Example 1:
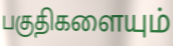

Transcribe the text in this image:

பகுதிகளையும்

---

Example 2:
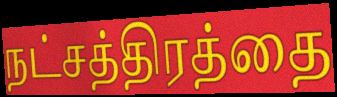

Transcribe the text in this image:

நட்சத்திரத்தை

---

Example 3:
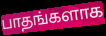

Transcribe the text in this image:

பாதங்களாக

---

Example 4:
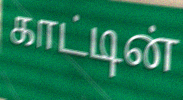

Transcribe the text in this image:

காட்டின்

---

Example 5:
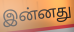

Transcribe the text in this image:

இன்னது